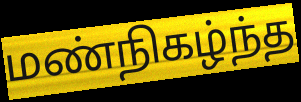
மண்நிகழ்ந்த